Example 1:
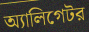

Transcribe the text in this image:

অ্যালিগেটর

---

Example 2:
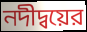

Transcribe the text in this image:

নদীদ্বয়ের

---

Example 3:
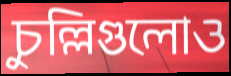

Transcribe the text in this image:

চুল্লিগুলোও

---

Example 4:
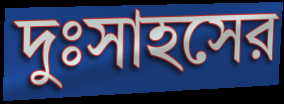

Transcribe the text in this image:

দুঃসাহসের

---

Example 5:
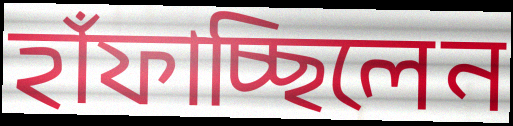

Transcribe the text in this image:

হাঁফাচ্ছিলেন